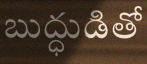
బుద్ధుడితో